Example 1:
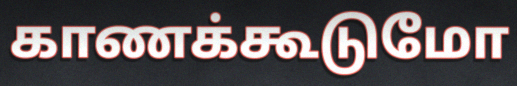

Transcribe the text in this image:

காணக்கூடுமோ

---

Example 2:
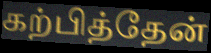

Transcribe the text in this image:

கற்பித்தேன்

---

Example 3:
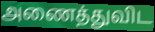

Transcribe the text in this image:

அணைத்துவிட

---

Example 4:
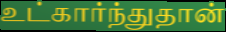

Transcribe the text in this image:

உட்கார்ந்துதான்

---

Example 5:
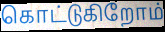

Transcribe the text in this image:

கொட்டுகிறோம்